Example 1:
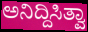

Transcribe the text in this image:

ಅನಿದ್ದಿಸಿತ್ವಾ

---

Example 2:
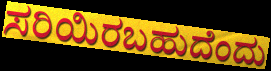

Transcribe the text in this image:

ಸರಿಯಿರಬಹುದೆಂದು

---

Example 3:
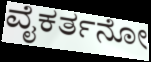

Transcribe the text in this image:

ವೈಕರ್ತನೋ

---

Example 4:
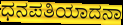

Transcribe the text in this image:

ಧನಪತಿಯಾದನಾ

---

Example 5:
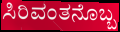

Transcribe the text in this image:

ಸಿರಿವಂತನೊಬ್ಬ